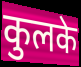
कुलके